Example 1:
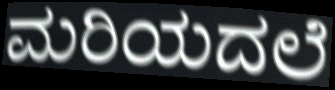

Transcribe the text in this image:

ಮರಿಯದಲೆ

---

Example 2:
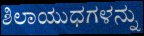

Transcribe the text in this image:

ಶಿಲಾಯುಧಗಳನ್ನು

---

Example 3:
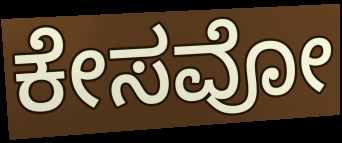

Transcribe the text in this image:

ಕೇಸವೋ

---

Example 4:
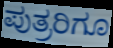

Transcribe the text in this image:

ಪುತ್ರರಿಗೂ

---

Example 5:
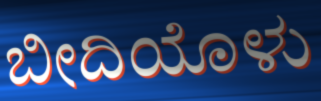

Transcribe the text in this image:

ಬೀದಿಯೊಳು